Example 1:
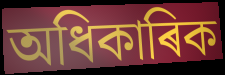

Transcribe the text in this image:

অধিকাৰিক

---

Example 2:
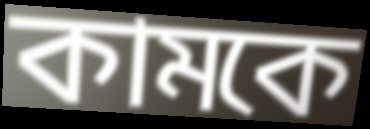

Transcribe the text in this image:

কামকে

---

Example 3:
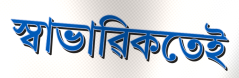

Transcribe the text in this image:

স্বাভাৱিকতেই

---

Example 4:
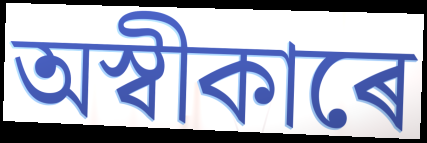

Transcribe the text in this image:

অস্বীকাৰে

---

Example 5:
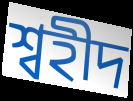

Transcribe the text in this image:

শ্বহীদ